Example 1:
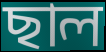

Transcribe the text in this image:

ছাল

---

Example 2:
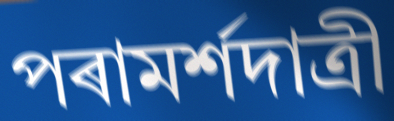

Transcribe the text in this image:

পৰামৰ্শদাত্ৰী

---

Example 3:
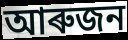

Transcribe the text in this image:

আৰুজন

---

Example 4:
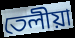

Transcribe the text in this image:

তেলীয়া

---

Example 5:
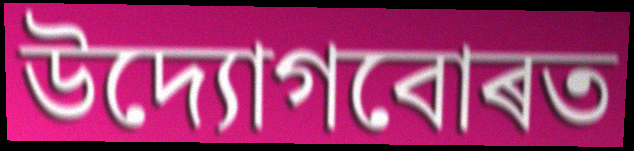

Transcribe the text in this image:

উদ্যোগবোৰত